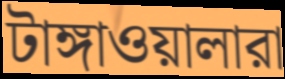
টাঙ্গাওয়ালারা